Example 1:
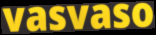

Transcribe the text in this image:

vasvaso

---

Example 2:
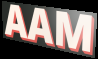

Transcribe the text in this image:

AAM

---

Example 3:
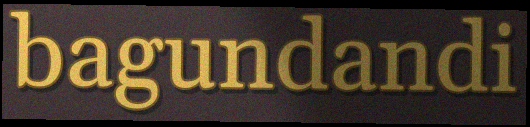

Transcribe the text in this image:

bagundandi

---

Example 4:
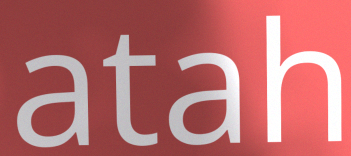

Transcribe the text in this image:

atah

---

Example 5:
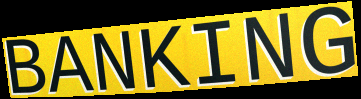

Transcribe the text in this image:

BANKING